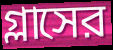
গ্লাসের